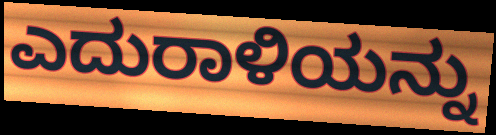
ಎದುರಾಳಿಯನ್ನು